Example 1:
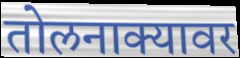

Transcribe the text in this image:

तोलनाक्यावर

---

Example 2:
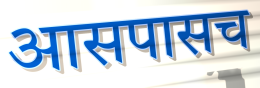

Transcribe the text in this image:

आसपासच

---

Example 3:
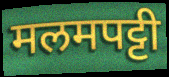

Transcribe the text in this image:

मलमपट्टी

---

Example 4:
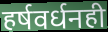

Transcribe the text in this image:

हर्षवर्धनही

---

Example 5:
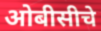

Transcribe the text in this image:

ओबीसीचे